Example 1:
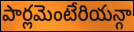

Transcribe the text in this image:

పార్లమెంటేరియన్గా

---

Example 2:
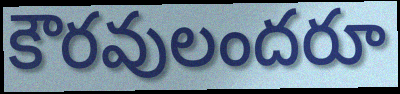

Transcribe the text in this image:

కౌరవులందరూ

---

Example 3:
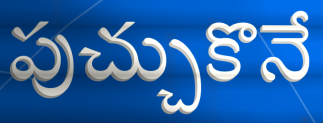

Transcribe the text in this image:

పుచ్చుకొనే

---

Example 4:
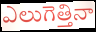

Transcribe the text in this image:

ఎలుగెత్తినా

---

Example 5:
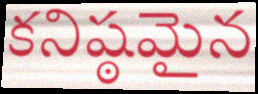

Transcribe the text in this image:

కనిష్ఠమైన